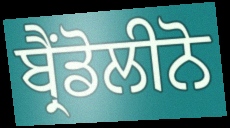
ਬ੍ਰੈਂਡੋਲੀਨੋ